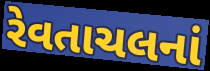
રેવતાચલનાં